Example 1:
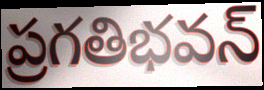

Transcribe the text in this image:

ప్రగతిభవన్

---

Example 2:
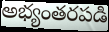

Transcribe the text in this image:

అభ్యంతరపడి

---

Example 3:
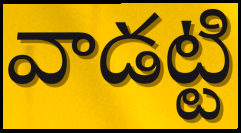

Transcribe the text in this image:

వాడట్టి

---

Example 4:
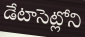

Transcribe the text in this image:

డేటాసెట్లోని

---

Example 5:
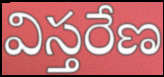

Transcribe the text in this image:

విస్తరేణ